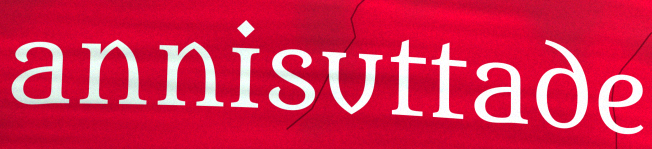
annisuttade